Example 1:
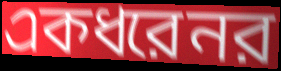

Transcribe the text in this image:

একধরেনর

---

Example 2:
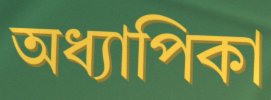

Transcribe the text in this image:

অধ্যাপিকা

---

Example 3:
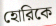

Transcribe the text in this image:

হোরিকে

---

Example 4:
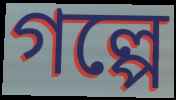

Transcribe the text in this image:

গল্পে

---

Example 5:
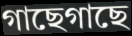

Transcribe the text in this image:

গাছেগাছে